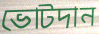
ভোটদান